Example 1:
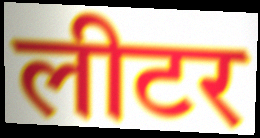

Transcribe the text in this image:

लीटर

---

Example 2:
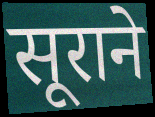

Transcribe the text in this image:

सूराने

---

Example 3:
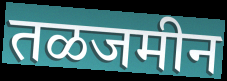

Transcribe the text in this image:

तळजमीन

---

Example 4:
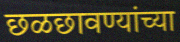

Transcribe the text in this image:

छळछावण्यांच्या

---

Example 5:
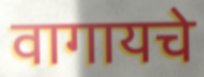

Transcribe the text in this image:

वागायचे